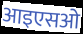
आइएसओ